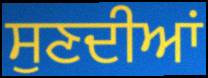
ਸੁਣਦੀਆਂ